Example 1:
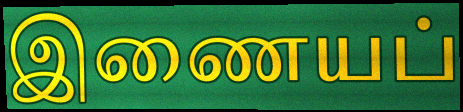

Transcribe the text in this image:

இணையப்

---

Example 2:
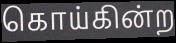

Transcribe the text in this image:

கொய்கின்ற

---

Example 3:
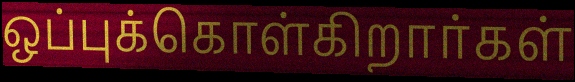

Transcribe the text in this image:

ஒப்புக்கொள்கிறார்கள்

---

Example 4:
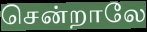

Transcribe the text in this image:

சென்றாலே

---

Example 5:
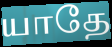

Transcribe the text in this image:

யாதே